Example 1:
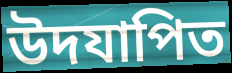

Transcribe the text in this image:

উদযাপিত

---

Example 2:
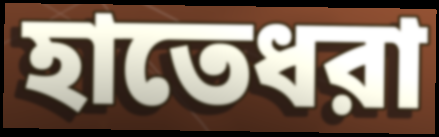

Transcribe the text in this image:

হাতেধরা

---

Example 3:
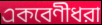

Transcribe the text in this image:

একবেণীধরা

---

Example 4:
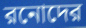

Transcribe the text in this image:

রনোদের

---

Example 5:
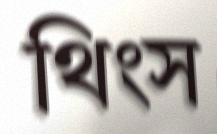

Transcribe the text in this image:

থিংস